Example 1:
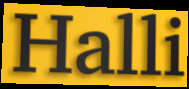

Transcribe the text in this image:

Halli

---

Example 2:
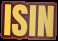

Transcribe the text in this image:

ISIN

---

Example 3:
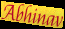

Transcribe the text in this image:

Abhinav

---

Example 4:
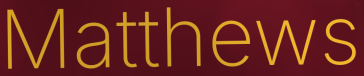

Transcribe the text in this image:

Matthews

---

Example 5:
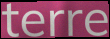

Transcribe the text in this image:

terre